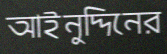
আইনুদ্দিনের